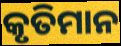
କୃତିମାନ